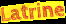
Latrine